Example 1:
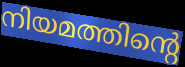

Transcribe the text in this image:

നിയമത്തിന്റെ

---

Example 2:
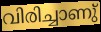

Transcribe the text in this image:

വിരിച്ചാണു്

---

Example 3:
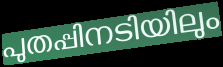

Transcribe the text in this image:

പുതപ്പിനടിയിലും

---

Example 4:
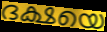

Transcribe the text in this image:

ദക്ഷയെ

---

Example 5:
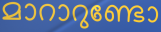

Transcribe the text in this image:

മാറാറുണ്ടോ